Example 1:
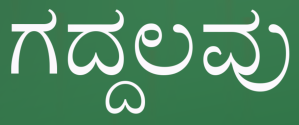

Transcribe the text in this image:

ಗದ್ದಲವು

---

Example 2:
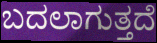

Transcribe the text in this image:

ಬದಲಾಗುತ್ತದೆ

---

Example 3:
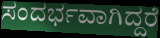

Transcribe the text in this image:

ಸಂದರ್ಭವಾಗಿದ್ದರೆ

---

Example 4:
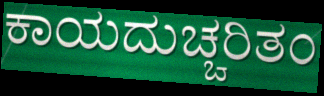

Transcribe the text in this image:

ಕಾಯದುಚ್ಚರಿತಂ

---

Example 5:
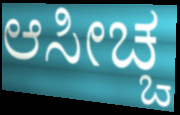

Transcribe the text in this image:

ಆಸೀಚ್ಚ